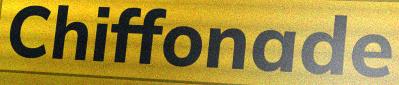
Chiffonade